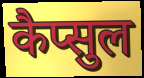
कैप्सुल